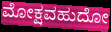
ಮೋಕ್ಷವಹುದೋ